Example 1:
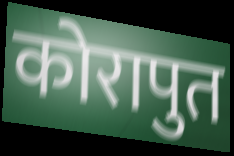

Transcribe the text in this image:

कोरापुत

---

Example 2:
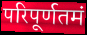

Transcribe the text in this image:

परिपूर्णतमं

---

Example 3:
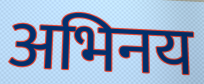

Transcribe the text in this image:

अभिनय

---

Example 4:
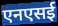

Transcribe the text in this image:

एनएसई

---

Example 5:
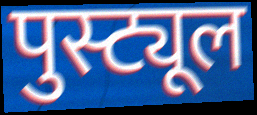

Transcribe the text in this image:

पुस्ट्यूल